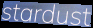
stardust